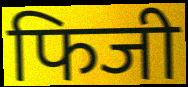
फिजी